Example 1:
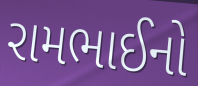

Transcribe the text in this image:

રામભાઈનો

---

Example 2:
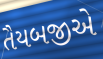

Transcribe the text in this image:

તૈયબજીએ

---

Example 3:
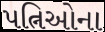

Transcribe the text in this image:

પત્નિઓના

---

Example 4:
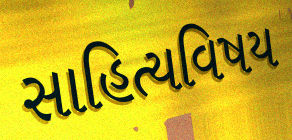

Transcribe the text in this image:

સાહિત્યવિષય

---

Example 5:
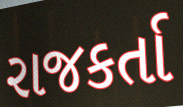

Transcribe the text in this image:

રાજકર્તા